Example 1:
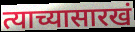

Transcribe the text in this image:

त्याच्यासारखं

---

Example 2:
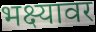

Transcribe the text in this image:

भक्ष्यावर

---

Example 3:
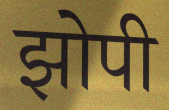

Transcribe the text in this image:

झोपी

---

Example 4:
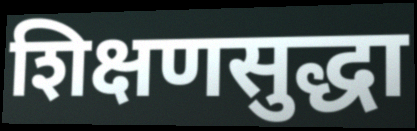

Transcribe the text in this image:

शिक्षणसुद्धा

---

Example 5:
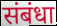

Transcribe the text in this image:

संबंधा